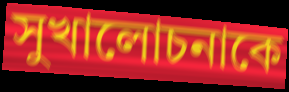
সুখালোচনাকে